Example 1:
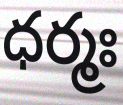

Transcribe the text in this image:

ధర్మః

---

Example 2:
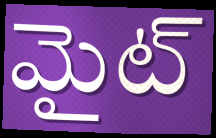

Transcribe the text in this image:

మైట్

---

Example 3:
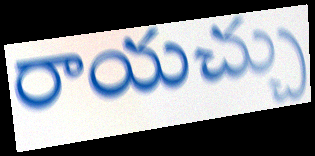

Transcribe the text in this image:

రాయచ్చు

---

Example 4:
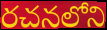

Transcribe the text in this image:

రచనలోని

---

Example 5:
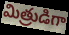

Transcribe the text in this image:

మిత్రుడిగా